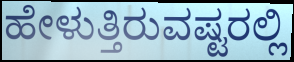
ಹೇಳುತ್ತಿರುವಷ್ಟರಲ್ಲಿ